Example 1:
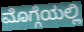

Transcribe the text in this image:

ಮೊಗ್ಗೆಯಲ್ಲಿ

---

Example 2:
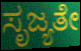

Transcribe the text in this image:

ಸೃಜ್ಯತೇ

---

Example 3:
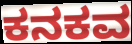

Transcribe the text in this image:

ಕನಕವ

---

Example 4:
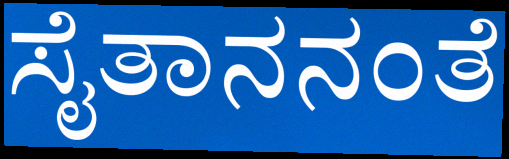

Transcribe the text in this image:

ಸೈತಾನನಂತೆ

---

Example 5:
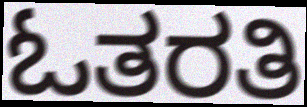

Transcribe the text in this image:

ಓತರತಿ